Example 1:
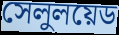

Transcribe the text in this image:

সেলুলয়েড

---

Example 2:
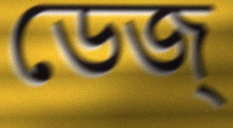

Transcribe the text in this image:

ডেজ্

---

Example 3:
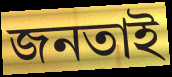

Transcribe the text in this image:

জনতাই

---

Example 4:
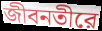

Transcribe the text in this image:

জীবনতীরে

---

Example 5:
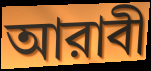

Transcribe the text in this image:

আরাবী